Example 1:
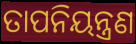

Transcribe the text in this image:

ତାପନିୟନ୍ତ୍ରଣ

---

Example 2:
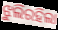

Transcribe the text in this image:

ଝୁଲିରହିଲା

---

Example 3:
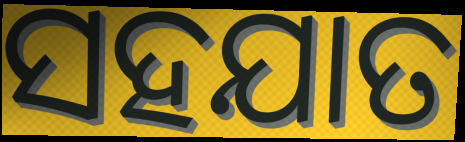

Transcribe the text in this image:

ସହଯାତ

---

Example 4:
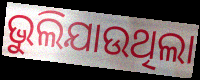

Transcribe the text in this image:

ଭୁଲିଯାଉଥିଲା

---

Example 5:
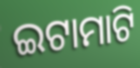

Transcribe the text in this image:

ଇଟାମାଟି